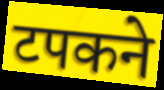
टपकने